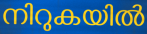
നിറുകയിൽ